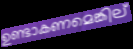
ഉണ്ടാകണമെങ്കില്